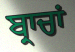
ਬ੍ਰਾਚਾਂ